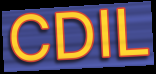
CDIL